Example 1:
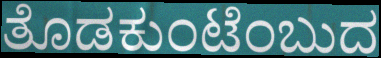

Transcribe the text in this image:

ತೊಡಕುಂಟೆಂಬುದ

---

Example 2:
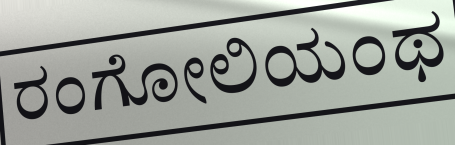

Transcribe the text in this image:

ರಂಗೋಲಿಯಂಥ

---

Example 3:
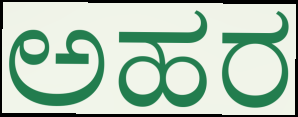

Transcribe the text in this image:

ಅಹರ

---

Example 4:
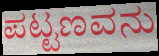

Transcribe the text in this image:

ಪಟ್ಟಣವನು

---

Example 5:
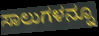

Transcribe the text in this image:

ಸಾಲುಗಳನ್ನೂ